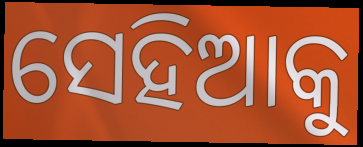
ସେହିଆକୁ